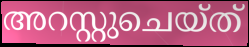
അറസ്റ്റുചെയ്ത്